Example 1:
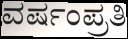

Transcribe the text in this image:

ವರ್ಷಂಪ್ರತಿ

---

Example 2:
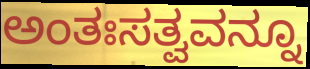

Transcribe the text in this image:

ಅಂತಃಸತ್ವವನ್ನೂ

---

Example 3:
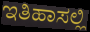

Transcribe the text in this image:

ಇತಿಹಾಸಲ್ಲಿ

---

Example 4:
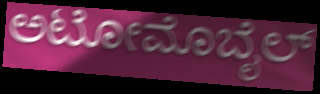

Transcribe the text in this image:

ಅಟೋಮೊಬೈಲ್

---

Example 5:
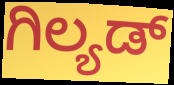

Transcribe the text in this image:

ಗಿಲ್ಯಡ್